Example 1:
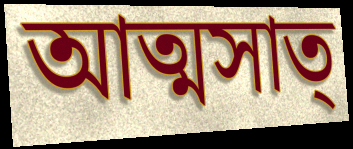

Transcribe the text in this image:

আত্মসাত্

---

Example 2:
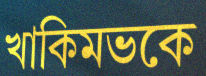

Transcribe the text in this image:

খাকিমভকে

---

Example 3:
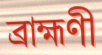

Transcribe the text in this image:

ব্রাহ্মণী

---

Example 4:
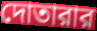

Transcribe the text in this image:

দোতারার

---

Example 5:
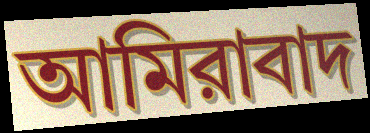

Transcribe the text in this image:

আমিরাবাদ